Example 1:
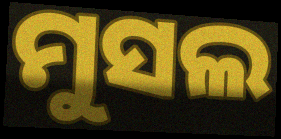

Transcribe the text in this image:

ମୁସଲ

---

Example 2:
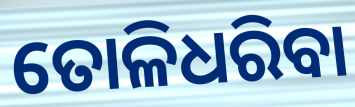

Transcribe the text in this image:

ତୋଳିଧରିବା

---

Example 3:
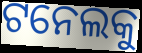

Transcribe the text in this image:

ଟନେଲକୁ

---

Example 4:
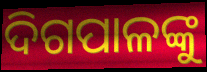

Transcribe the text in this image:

ଦିଗପାଳଙ୍କୁ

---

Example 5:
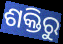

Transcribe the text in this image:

ଶକ୍ତିରୁ